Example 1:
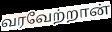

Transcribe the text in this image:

வரவேற்றான்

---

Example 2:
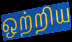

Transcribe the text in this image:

ஒற்றிய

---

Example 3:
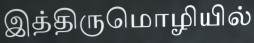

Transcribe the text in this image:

இத்திருமொழியில்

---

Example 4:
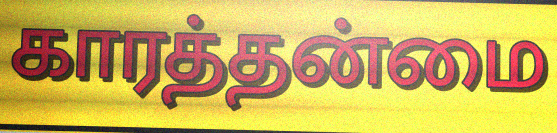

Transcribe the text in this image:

காரத்தன்மை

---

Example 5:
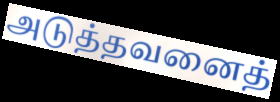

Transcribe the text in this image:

அடுத்தவனைத்